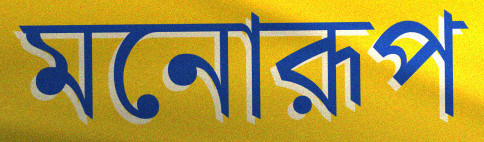
মনোরূপ